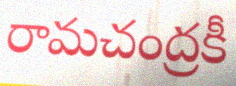
రామచంద్రకీ